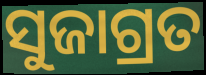
ସୁଜାଗ୍ରତ